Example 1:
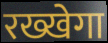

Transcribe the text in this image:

रख्खेगा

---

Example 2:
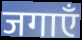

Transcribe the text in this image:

जगाएँ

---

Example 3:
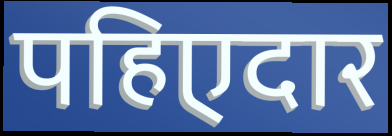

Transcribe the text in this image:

पहिएदार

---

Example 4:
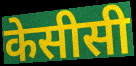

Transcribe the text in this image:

केसीसी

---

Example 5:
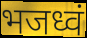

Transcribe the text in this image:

भजध्वं